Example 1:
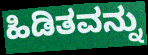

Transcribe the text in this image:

ಹಿಡಿತವನ್ನು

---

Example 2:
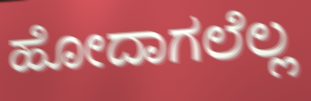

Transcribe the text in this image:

ಹೋದಾಗಲೆಲ್ಲ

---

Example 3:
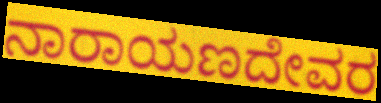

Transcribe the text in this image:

ನಾರಾಯಣದೇವರ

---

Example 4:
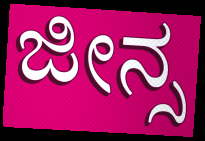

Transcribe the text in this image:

ಜೀನ್ಸ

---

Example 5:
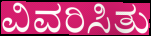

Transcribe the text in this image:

ವಿವರಿಸಿತು